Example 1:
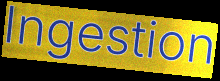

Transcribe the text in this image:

Ingestion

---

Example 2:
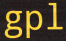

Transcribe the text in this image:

gpl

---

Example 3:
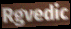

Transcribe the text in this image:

Rgvedic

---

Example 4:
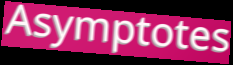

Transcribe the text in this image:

Asymptotes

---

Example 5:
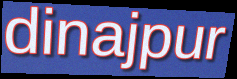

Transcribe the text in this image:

dinajpur